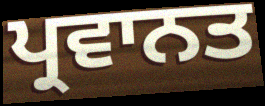
ਪ੍ਰਵਾਨਤ